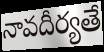
నావదీర్యతే